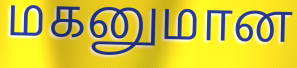
மகனுமான